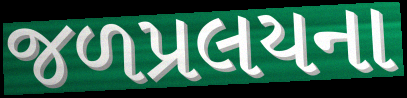
જળપ્રલયના